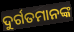
ଦୁର୍ଗତମାନଙ୍କ